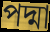
পদ্মা